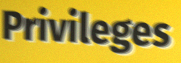
Privileges